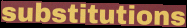
substitutions